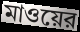
মাওয়ের